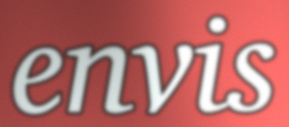
envis